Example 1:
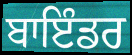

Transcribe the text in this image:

ਬਾਇੰਡਰ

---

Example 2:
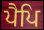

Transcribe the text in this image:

ਪੈਪਿ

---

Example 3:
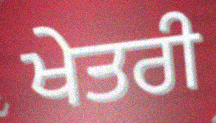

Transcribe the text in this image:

ਖੇਤਰੀ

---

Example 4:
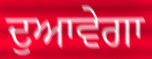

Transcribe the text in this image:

ਦੁਆਵੇਗਾ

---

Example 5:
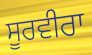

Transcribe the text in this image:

ਸੂਰਵੀਰਾ